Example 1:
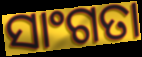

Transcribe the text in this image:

ସାଂଗତା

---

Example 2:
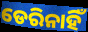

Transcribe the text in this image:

ଡେରିନାହିଁ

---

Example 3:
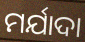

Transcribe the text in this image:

ମର୍ଯାଦା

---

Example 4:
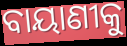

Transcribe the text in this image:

ବାୟାଣୀକୁ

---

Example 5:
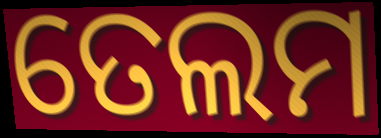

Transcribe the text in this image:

ତେଲମ